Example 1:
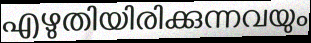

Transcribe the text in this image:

എഴുതിയിരിക്കുന്നവയും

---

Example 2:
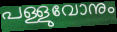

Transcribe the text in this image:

പള്ളുവോനും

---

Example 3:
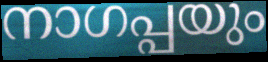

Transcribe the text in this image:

നാഗപ്പയും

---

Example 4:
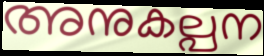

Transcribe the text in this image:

അനുകല്പന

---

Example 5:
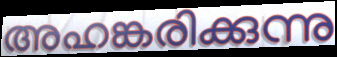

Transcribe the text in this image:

അഹങ്കരിക്കുന്നു